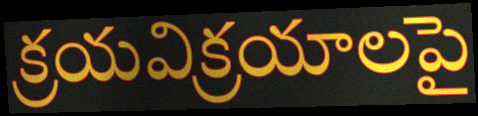
క్రయవిక్రయాలపై